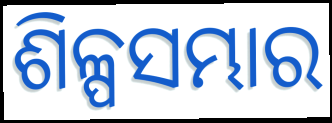
ଶିଳ୍ପସମ୍ଭାର